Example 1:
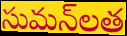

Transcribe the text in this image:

సుమన్‌లత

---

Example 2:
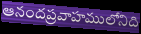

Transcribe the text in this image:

ఆనందప్రవాహములోనిది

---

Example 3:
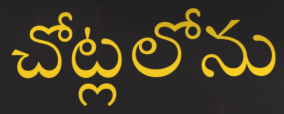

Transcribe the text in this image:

చోట్లలోను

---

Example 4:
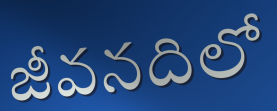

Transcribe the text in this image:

జీవనదిలో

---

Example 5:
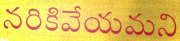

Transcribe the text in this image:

నరికివేయమని